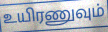
உயிரணுவும்